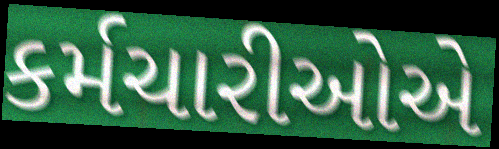
કર્મચારીઓએ